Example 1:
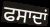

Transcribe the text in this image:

ਫਸਾਦਾਂ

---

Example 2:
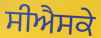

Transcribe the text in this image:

ਸੀਐਸਕੇ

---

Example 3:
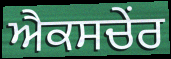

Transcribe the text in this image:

ਐਕਸਚੇਂਰ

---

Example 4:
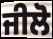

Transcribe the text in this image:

ਜੀਲੋ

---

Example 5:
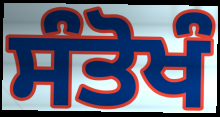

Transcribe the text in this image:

ਸੰਤੋਖੰ